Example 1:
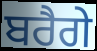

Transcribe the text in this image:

ਬਰੈਗੇ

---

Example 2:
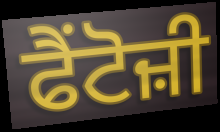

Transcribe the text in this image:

ਫੈਂਟੋਜ਼ੀ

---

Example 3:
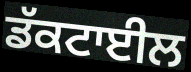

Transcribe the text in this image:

ਡੱਕਟਾਈਲ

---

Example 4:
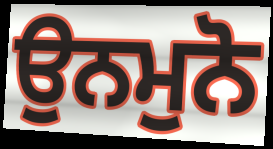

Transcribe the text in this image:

ਉਨਮੁਨੋ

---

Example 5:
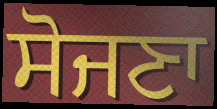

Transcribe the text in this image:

ਸੋਜਣਾ